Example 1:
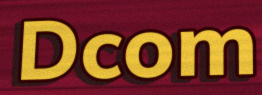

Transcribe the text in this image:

Dcom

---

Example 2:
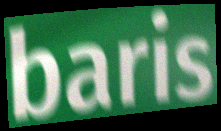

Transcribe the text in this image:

baris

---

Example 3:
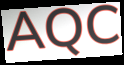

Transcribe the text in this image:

AQC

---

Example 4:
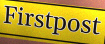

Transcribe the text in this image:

Firstpost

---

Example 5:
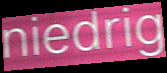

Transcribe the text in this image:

niedrig